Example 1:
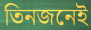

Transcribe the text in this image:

তিনজনেই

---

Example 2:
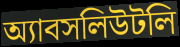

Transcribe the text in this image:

অ্যাবসলিউটলি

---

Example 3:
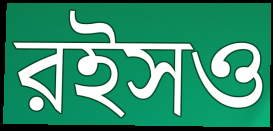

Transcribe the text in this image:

রইসও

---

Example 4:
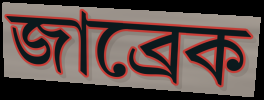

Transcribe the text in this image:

জাব্রেক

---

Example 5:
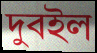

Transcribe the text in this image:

দুবইল